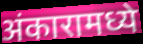
अंकारामध्ये